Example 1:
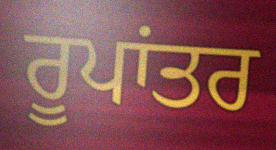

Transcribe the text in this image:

ਰੂਪਾਂਤਰ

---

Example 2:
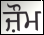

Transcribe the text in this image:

ਜ਼ੌਮ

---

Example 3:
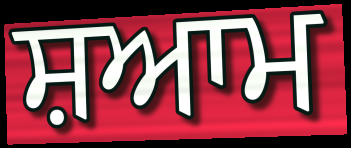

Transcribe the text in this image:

ਸ਼ਆਮ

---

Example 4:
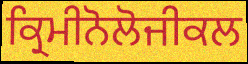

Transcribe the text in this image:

ਕ੍ਰਿਮੀਨੋਲੋਜੀਕਲ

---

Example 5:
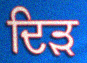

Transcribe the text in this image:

ਦਿੜ